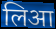
लिआ